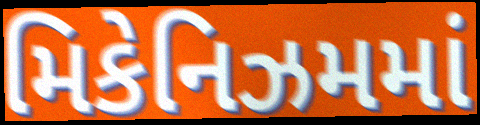
મિકેનિઝમમાં